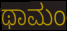
ಥಾಮಂ